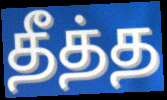
தீத்த